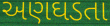
અણઘડતા